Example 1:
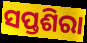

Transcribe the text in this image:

ସପ୍ତଶିରା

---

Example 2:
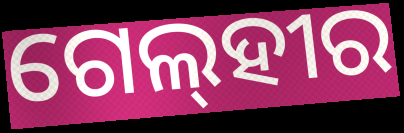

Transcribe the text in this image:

ଗେଲ୍‌ହୀର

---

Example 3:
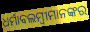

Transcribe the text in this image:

ଧର୍ମାବଲମ୍ବୀମାନଙ୍କର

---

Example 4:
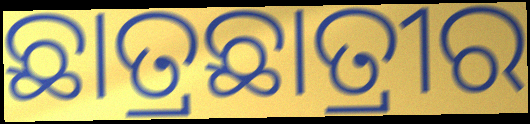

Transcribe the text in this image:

ଛାତ୍ରଛାତ୍ରୀର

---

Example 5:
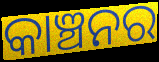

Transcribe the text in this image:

କାଞ୍ଚନର